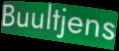
Buultjens